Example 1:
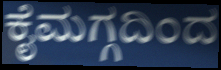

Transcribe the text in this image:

ಕೈಮಗ್ಗದಿಂದ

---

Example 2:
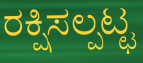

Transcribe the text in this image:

ರಕ್ಷಿಸಲ್ಪಟ್ಟ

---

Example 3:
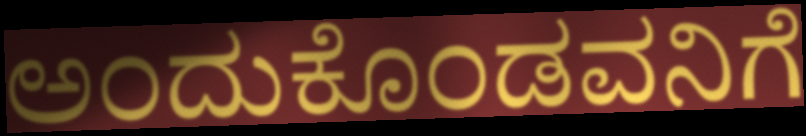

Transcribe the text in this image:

ಅಂದುಕೊಂಡವನಿಗೆ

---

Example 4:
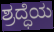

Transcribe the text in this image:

ಶ್ರದ್ಧೆಯ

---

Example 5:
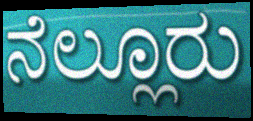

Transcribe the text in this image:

ನೆಲ್ಲೂರು